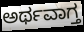
ಅರ್ಥವಾಗ್ತ